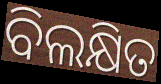
ବିଲକ୍ଷିତ